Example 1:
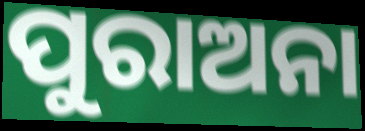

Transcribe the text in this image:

ପୁରାଅନା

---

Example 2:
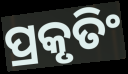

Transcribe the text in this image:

ପ୍ରକୃତିଂ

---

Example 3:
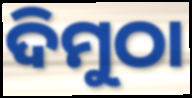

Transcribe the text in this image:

ଦିମୁଠା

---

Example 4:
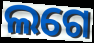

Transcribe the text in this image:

ଲଗେ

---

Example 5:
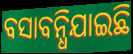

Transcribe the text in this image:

ବସାବନ୍ଧିଯାଇଛି